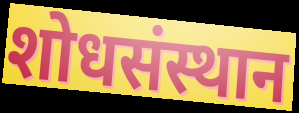
शोधसंस्थान